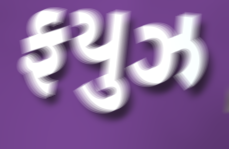
ફયુઝ